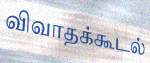
விவாதக்கூடல்